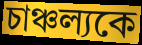
চাঞ্চল্যকে